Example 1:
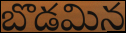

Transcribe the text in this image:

బొడమిన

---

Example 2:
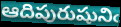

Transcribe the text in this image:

ఆదిపురుషునిఁ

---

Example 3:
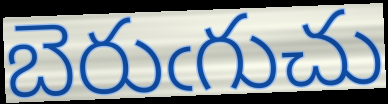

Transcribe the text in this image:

బెరుఁగుచు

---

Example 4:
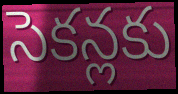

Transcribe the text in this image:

సెకన్లకు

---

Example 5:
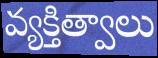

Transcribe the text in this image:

వ్యక్తిత్వాలు